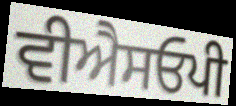
ਵੀਐਸਓਪੀ